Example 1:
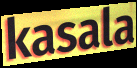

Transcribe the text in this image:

kasala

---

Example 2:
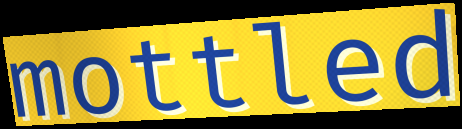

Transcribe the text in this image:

mottled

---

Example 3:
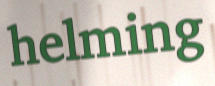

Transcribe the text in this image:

helming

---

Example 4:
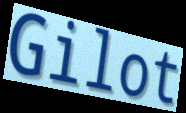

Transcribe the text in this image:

Gilot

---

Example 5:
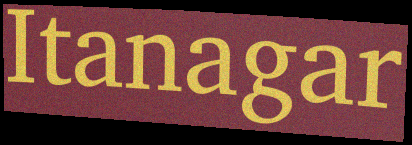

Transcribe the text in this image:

Itanagar